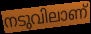
നടുവിലാണ്